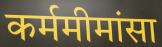
कर्ममीमांसा